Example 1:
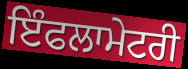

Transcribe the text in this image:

ਇੰਫਲਾਮੇਟਰੀ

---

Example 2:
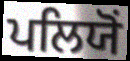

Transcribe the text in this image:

ਪਲਿਯੋਂ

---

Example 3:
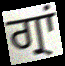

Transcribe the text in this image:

ਗ੍ਰਾਂ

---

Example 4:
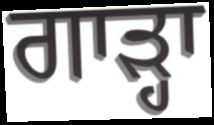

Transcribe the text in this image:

ਗਾੜ੍ਹਾ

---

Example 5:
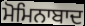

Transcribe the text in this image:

ਮੋਮਿਨਾਬਾਦ